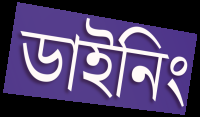
ডাইনিং